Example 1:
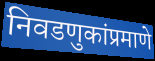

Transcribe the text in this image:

निवडणुकांप्रमाणे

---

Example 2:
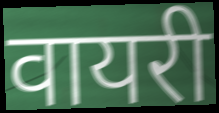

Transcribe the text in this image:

वायरी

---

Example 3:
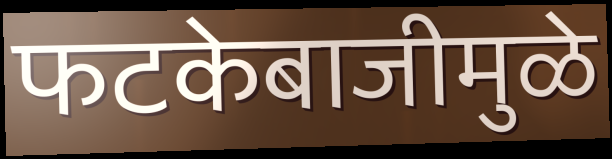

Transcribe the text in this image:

फटकेबाजीमुळे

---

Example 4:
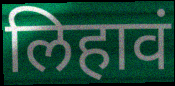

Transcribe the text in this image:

लिहावं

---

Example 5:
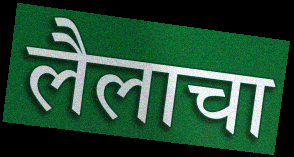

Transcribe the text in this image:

लैलाचा